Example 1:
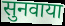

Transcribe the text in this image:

सुनवाया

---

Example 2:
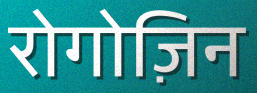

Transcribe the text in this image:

रोगोज़िन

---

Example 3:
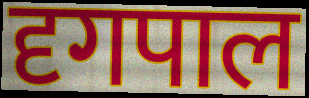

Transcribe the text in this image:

दृगपाल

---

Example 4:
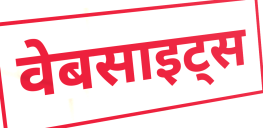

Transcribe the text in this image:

वेबसाइट्स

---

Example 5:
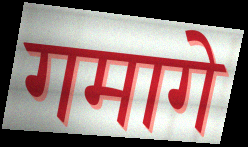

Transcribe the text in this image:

गमागे